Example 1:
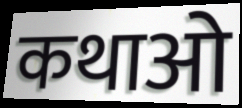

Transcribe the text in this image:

कथाओ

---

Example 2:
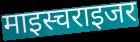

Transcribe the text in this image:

माइस्चराइजर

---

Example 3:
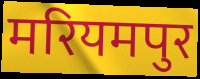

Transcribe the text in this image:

मरियमपुर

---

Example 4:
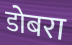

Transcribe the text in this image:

डोबरा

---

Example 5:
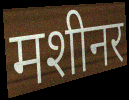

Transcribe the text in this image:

मशीनर